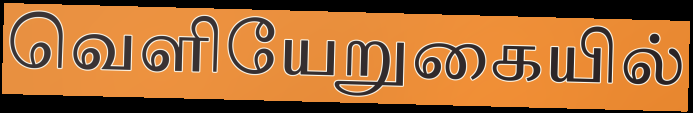
வெளியேறுகையில்